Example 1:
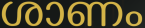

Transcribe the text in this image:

ശാണം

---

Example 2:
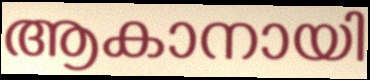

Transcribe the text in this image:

ആകാനായി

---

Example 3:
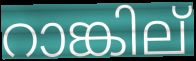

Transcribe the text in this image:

റാങ്കില്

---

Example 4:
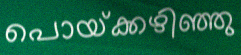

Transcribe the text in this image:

പൊയ്‌ക്കഴിഞ്ഞു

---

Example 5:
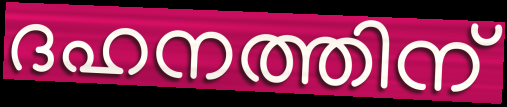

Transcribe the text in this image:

ദഹനത്തിന്